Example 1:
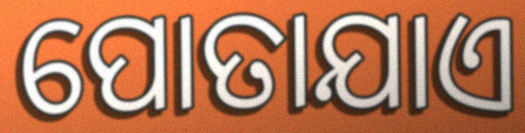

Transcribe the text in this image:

ପୋତାଯାଏ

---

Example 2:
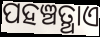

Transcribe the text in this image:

ପହଞ୍ଚତ୍ଥାଏ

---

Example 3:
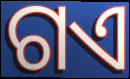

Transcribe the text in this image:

ଗଏ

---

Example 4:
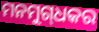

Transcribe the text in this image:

ମନମୁଗ୍‌ଧକର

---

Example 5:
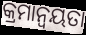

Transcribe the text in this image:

କ୍ରମାନ୍ବୟତା